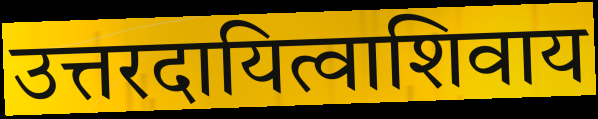
उत्तरदायित्वाशिवाय